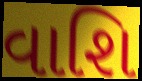
વાશિ